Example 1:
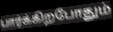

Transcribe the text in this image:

பார்க்கிறபோதும்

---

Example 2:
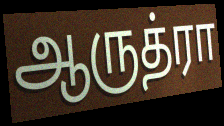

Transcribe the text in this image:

ஆருத்ரா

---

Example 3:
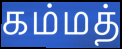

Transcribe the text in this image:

கம்மத்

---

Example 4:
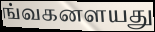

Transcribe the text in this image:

ங்வகனளயது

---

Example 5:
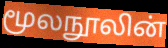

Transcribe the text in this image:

மூலநூலின்